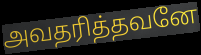
அவதரித்தவனே